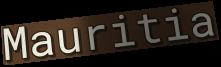
Mauritia